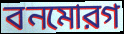
বনমোরগ